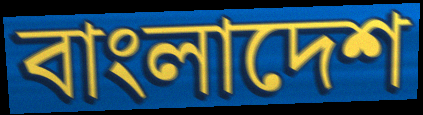
বাংলাদেশ